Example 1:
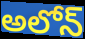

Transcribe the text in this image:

అలోన్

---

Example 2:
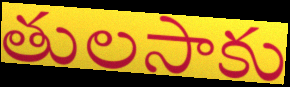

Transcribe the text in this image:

తులసాకు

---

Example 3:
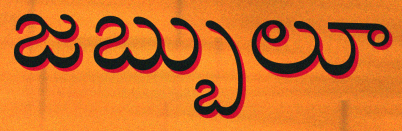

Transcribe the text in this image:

జబ్బులూ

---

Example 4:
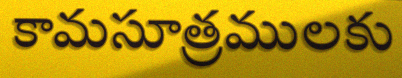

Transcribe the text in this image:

కామసూత్రములకు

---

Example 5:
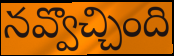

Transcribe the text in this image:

నవ్వొచ్చింది